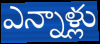
ఎన్నాళ్లు